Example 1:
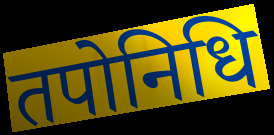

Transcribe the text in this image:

तपोनिधि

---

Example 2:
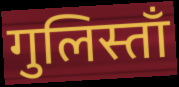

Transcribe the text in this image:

गुलिस्ताँ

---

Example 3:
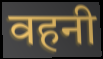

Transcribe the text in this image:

वहनी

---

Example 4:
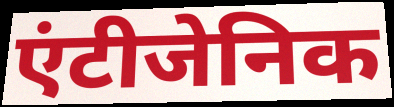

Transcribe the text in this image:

एंटीजेनिक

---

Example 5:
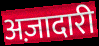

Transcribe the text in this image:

अज़ादारी